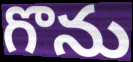
గొను